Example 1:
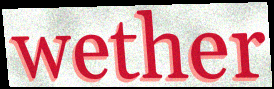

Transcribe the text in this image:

wether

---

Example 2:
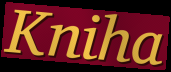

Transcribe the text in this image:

Kniha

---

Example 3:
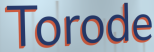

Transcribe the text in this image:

Torode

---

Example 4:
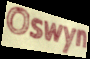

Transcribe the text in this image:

Oswyn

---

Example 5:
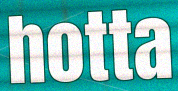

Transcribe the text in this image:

hotta